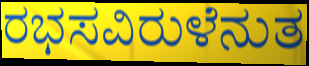
ರಭಸವಿರುಳೆನುತ